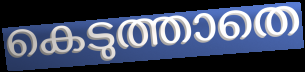
കെടുത്താതെ